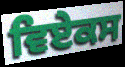
ਵਿਏਕਸ